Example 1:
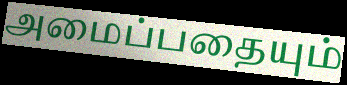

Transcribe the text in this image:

அமைப்பதையும்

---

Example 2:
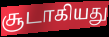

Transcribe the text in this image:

சூடாகியது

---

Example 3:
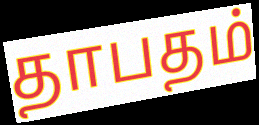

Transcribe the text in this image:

தாபதம்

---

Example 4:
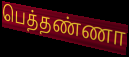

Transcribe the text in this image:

பெத்தண்ணா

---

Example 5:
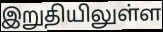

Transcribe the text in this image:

இறுதியிலுள்ள